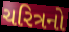
ચરિત્રનો